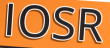
IOSR